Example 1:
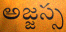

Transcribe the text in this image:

అజ్జస్స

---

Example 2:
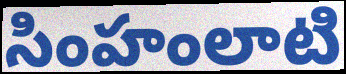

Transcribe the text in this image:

సింహంలాటి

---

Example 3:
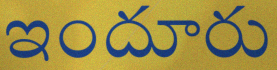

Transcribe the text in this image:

ఇందూరు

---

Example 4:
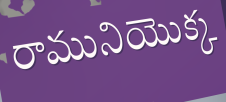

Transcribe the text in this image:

రామునియొక్క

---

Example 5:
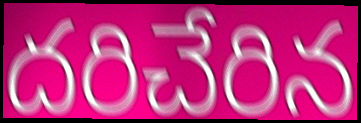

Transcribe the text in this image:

దరిచేరిన